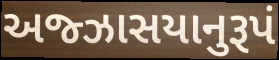
અજ્ઝાસયાનુરૂપં